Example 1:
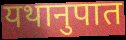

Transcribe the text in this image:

यथानुपात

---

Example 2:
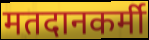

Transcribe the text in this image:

मतदानकर्मी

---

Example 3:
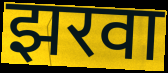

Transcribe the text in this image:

झरवा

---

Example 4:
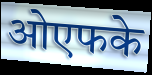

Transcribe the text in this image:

ओएफके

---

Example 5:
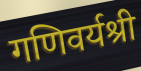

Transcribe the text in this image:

गणिवर्यश्री